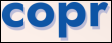
copr